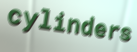
cylinders